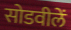
सोडवीलें